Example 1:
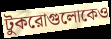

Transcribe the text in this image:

টুকরোগুলোকেও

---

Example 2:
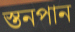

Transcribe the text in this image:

স্তনপান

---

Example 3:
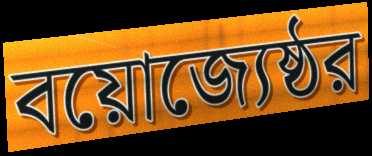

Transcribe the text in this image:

বয়োজ্যেষ্ঠর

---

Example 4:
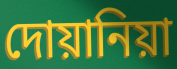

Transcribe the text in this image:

দোয়ানিয়া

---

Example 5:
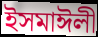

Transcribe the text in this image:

ইসমাঈলী